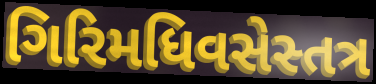
ગિરિમધિવસેસ્તત્ર